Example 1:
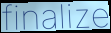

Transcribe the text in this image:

finalize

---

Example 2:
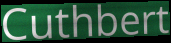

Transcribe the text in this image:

Cuthbert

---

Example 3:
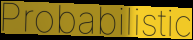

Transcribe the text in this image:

Probabilistic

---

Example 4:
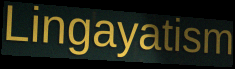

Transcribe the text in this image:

Lingayatism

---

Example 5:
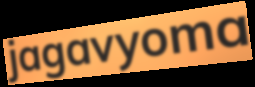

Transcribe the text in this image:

jagavyoma